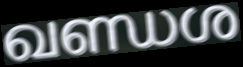
ഖണ്ഡശ